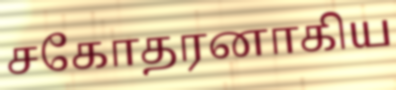
சகோதரனாகிய